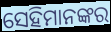
ସେହିମାନଙ୍କର